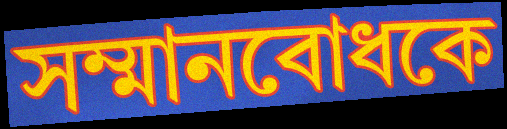
সম্মানবোধকে